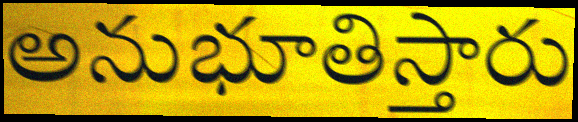
అనుభూతిస్తారు